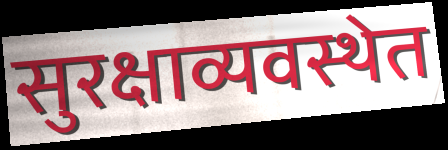
सुरक्षाव्यवस्थेत